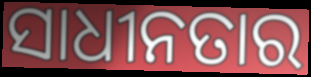
ସାଧୀନତାର